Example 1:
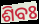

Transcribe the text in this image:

ଶିବଃ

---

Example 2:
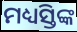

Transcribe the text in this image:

ମଧ୍ୟସ୍ତିଙ୍କ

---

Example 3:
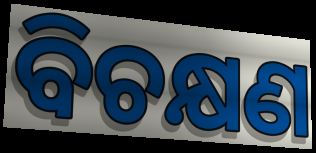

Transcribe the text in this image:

ବିଚକ୍ଷଣ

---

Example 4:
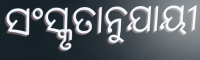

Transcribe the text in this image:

ସଂସ୍କୃତାନୁଯାୟୀ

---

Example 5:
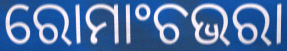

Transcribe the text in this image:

ରୋମାଂଚଭରା